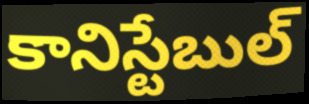
కానిస్టేబుల్